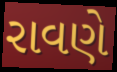
રાવણે